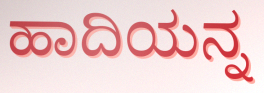
ಹಾದಿಯನ್ನ